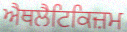
ਐਥਲੈਟਿਕਿਜ਼ਮ